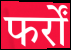
फर्रों